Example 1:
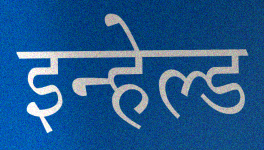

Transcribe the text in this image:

इन्हेल्ड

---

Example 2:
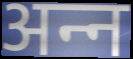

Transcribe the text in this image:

अन्न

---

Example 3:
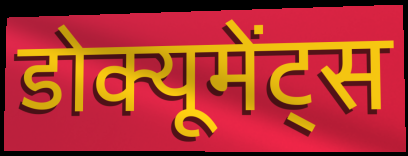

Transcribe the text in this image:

डोक्यूमेंट्स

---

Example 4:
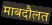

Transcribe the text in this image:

माबदौलत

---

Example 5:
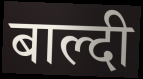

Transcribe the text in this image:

बाल्दी